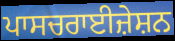
ਪਾਸਚਰਾਈਜ਼ੇਸ਼ਨ